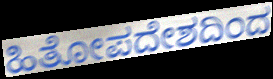
ಹಿತೋಪದೇಶದಿಂದ